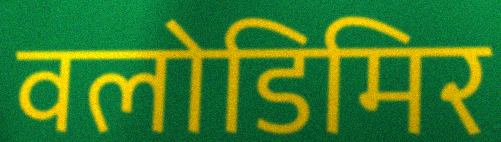
वलोडिमिर